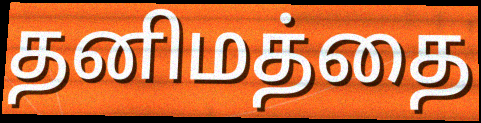
தனிமத்தை